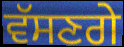
ਵੱਸਣਗੇ